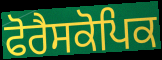
ਫੋਰੈਸਕੋਪਿਕ